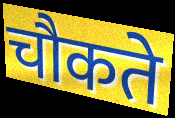
चौकते